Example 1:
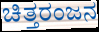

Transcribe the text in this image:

ಚಿತ್ತರಂಜನ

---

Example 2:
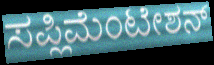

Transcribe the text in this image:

ಸಪ್ಲಿಮೆಂಟೇಶನ್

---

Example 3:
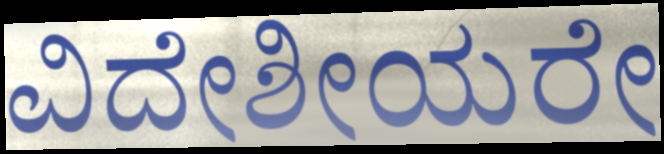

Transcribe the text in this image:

ವಿದೇಶೀಯರೇ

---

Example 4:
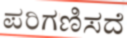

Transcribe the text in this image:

ಪರಿಗಣಿಸದೆ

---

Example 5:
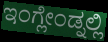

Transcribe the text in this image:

ಇಂಗ್ಲೇಂಡ್ನಲ್ಲಿ